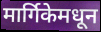
मार्गिकेमधून